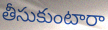
తీసుకుంటారా